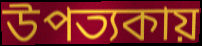
উপত্যকায়